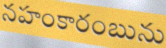
నహంకారంబును